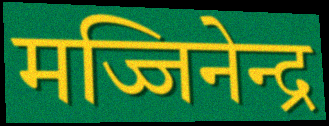
मज्जिनेन्द्र